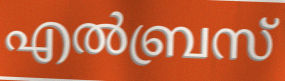
എൽബ്രസ്